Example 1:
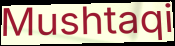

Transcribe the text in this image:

Mushtaqi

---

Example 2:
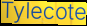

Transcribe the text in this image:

Tylecote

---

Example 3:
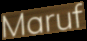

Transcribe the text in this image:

Maruf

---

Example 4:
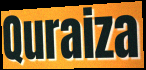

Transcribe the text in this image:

Quraiza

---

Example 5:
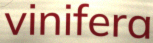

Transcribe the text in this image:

vinifera